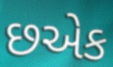
છએક